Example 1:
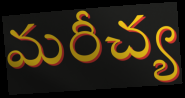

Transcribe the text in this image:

మరీచ్య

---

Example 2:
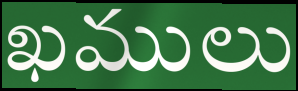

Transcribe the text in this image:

ఖములు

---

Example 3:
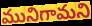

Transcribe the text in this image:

మునిగామని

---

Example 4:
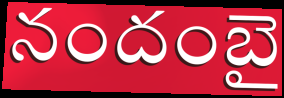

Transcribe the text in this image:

నందంబై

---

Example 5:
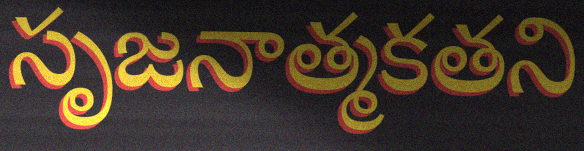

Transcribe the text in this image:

సృజనాత్మకతని